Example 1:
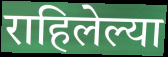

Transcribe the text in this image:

राहिलेल्या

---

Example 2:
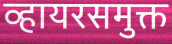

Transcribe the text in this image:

व्हायरसमुक्त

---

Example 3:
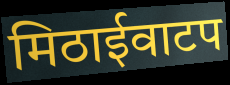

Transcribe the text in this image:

मिठाईवाटप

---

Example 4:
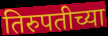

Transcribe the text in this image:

तिरुपतीच्या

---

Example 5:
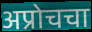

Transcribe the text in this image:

अप्रोचचा